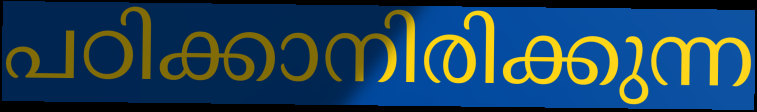
പഠിക്കാനിരിക്കുന്ന